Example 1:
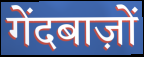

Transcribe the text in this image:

गेंदबाज़ों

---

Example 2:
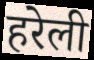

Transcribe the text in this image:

हरेली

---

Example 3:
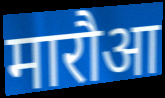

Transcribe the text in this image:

मारौआ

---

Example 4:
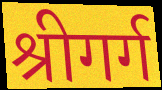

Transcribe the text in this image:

श्रीगर्ग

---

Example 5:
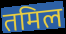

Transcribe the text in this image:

तमिल